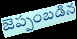
జెప్పంబడిన